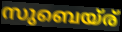
സുബെയ്ര്